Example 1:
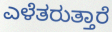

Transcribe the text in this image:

ಎಳೆತರುತ್ತಾರೆ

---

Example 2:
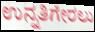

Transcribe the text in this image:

ಉನ್ನತಿಗೇರಲು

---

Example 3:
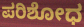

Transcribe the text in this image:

ಪರಿಶೋಧ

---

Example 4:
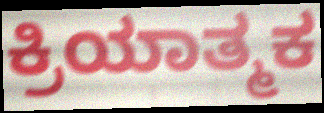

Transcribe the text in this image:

ಕ್ರಿಯಾತ್ಮಕ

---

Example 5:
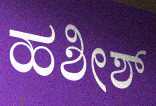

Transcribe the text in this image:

ಹಶೀಶ್